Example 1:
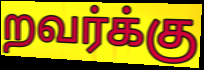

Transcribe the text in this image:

றவர்க்கு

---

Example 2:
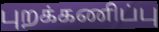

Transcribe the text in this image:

புறக்கணிப்பு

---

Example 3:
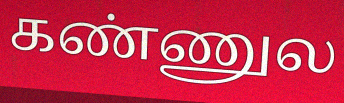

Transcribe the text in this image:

கண்ணுல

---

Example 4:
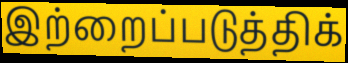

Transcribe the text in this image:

இற்றைப்படுத்திக்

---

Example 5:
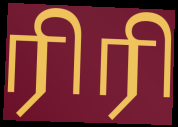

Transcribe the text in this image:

ரிரி